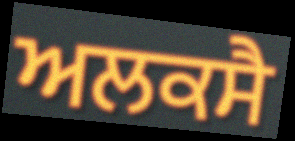
ਅਲਕਸੈ